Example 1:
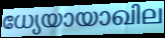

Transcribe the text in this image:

ധ്യേയായാഖില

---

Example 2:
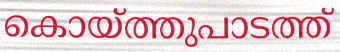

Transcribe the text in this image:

കൊയ്ത്തുപാടത്ത്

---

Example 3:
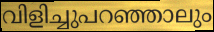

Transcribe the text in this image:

വിളിച്ചുപറഞ്ഞാലും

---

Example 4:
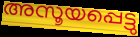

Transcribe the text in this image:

അസൂയപ്പെട്ടു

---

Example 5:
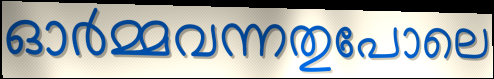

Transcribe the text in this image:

ഓർമ്മവന്നതുപോലെ